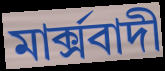
মার্ক্সবাদী